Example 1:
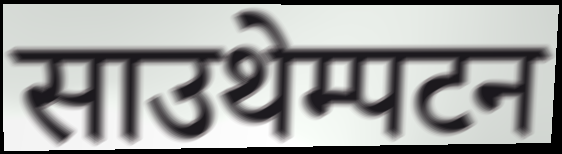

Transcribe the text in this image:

साउथेम्पटन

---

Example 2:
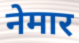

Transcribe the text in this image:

नेमार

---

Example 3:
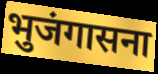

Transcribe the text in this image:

भुजंगासना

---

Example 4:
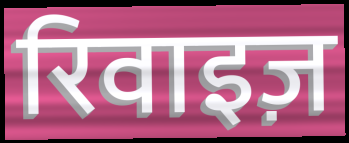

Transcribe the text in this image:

रिवाइज़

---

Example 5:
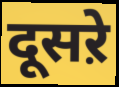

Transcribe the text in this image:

दूसऱे